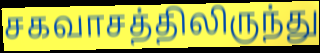
சகவாசத்திலிருந்து